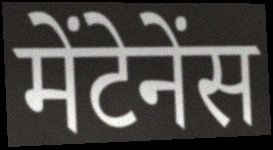
मेंटेनेंस